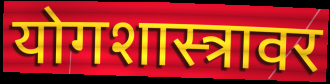
योगशास्त्रावर